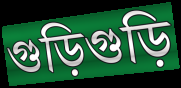
গুড়িগুড়ি